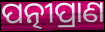
ପତ୍ନୀପ୍ରାଣ